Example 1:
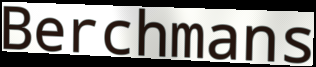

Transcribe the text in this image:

Berchmans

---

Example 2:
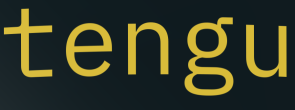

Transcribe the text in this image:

tengu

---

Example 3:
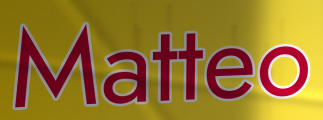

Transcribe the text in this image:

Matteo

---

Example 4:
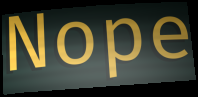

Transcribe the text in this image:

Nope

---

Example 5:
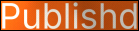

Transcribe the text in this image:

Publishd